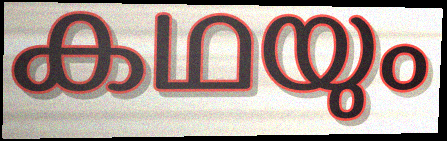
കഥയും